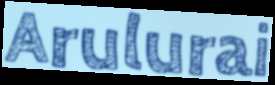
Arulurai